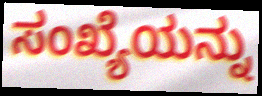
ಸಂಖ್ಯೆಯನ್ನು